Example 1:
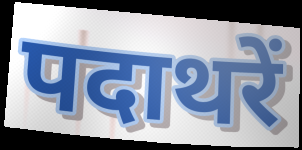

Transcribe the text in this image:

पदाथरें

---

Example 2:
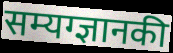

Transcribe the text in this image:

सम्यग्ज्ञानकी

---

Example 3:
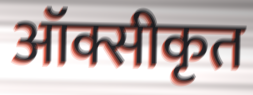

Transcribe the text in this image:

ऑक्सीकृत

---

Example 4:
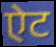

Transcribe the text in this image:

ऐट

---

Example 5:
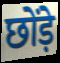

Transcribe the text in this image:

छोंड़े